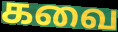
கவை